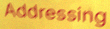
Addressing